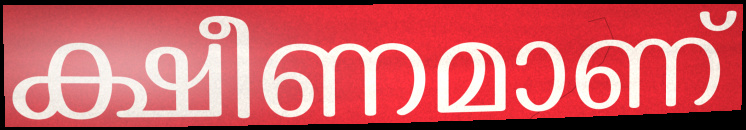
ക്ഷീണമാണ്